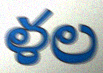
ళల